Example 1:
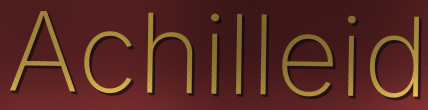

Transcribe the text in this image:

Achilleid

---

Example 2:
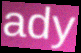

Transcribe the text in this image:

ady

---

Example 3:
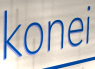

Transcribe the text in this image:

konei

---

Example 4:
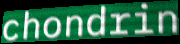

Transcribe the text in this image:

chondrin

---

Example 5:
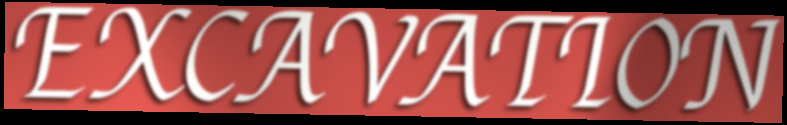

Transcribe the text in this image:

EXCAVATION